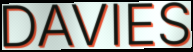
DAVIES